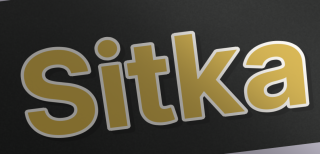
Sitka